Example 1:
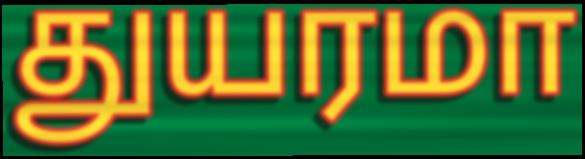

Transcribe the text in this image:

துயரமா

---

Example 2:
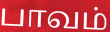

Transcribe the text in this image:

பாவம்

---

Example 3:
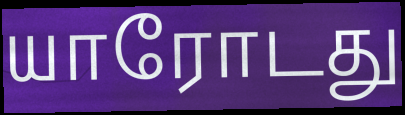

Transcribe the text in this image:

யாரோடது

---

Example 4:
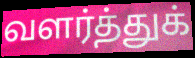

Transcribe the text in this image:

வளர்த்துக்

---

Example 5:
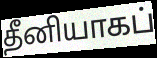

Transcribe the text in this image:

தீனியாகப்